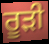
ਰੂੜੀ